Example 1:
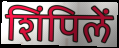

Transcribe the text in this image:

शिंपिलें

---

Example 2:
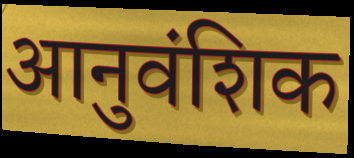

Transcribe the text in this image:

आनुवंशिक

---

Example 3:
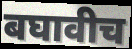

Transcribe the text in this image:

बघावीच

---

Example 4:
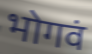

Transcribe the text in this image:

भोगवं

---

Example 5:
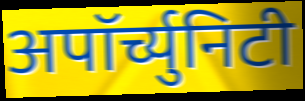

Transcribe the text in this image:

अपॉर्च्युनिटी